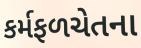
કર્મફળચેતના